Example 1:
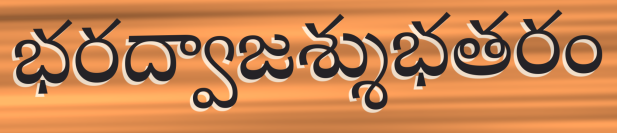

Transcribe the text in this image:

భరద్వాజశ్శుభతరం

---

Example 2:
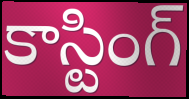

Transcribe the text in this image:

కాస్టింగ్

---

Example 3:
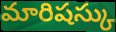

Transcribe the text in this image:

మారిషస్కు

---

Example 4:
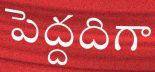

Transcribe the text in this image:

పెద్దదిగా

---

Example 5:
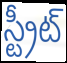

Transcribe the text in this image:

స్ట్రీట్